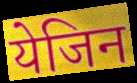
येजिन